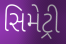
સિમેટ્રી